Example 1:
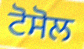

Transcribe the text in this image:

ਟੋਸੋਲ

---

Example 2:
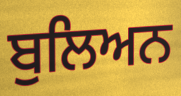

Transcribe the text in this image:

ਬੁਲਿਅਨ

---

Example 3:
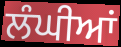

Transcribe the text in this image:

ਲੰਘੀਆਂ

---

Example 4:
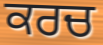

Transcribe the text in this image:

ਕਰਚ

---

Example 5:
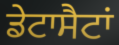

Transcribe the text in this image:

ਡੇਟਾਸੈਟਾਂ